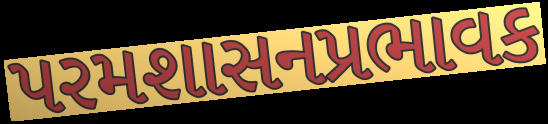
પરમશાસનપ્રભાવક